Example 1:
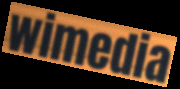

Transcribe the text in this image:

wimedia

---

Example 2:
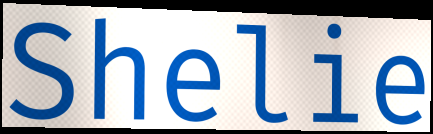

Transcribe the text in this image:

Shelie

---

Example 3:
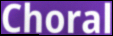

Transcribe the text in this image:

Choral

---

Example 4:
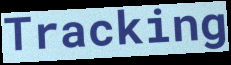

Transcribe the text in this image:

Tracking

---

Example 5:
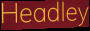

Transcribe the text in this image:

Headley